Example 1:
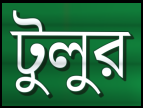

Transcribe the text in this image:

টুলুর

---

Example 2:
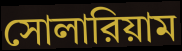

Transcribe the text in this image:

সোলারিয়াম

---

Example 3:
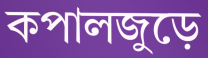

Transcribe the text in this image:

কপালজুড়ে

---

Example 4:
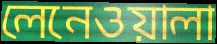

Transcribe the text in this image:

লেনেওয়ালা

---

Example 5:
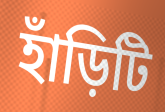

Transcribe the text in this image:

হাঁড়িটি